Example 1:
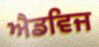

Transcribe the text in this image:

ਐਡਵਿਜ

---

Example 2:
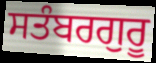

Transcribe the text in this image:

ਸਤੰਬਰਗੁਰੂ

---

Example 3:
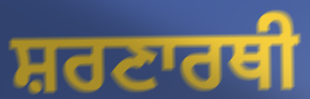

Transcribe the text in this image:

ਸ਼ਰਣਾਰਥੀ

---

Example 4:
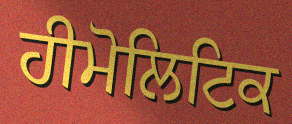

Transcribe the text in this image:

ਹੀਮੋਲਿਟਿਕ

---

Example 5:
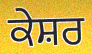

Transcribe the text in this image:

ਕੇਸ਼ਰ